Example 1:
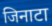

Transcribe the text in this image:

जिनाटा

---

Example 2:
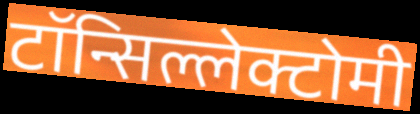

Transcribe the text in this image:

टॉन्सिल्लेक्टोमी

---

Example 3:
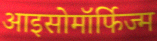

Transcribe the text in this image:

आइसोमॉर्फिज्म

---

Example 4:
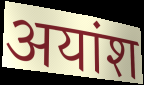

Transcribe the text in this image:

अयांश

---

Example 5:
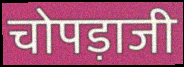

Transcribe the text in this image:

चोपड़ाजी